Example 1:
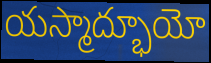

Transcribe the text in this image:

యస్మాద్భూయో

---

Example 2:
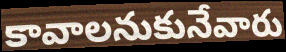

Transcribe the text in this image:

కావాలనుకునేవారు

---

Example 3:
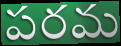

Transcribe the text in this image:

పరమ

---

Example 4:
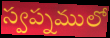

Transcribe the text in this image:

స్వప్నములో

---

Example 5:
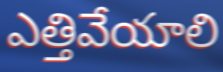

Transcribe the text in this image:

ఎత్తివేయాలి